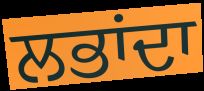
ਲਭਾਂਦਾ